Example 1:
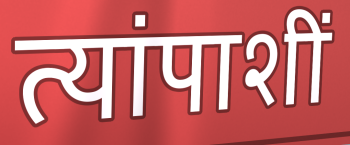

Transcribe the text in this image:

त्यांपाशीं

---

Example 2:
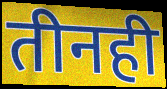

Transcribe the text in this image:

तीनही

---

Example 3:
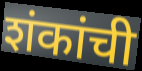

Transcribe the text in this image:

शंकांची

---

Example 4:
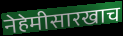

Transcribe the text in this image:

नेहेमीसारखाच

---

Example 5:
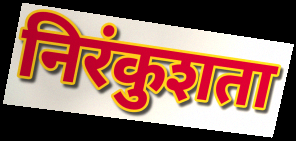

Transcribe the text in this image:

निरंकुशता